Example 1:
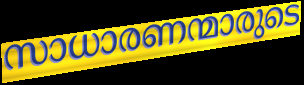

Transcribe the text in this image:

സാധാരണന്മാരുടെ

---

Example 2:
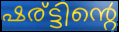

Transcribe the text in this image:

ഷര്ട്ടിന്റെ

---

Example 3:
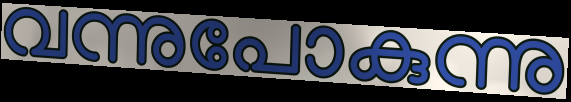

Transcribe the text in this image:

വന്നുപോകുന്നു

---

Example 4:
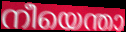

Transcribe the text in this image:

നീയെന്താ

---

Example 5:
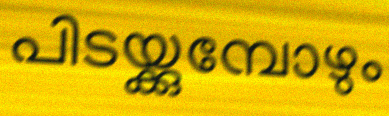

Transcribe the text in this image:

പിടയ്ക്കുമ്പോഴും